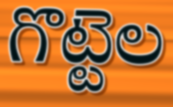
గొట్టెల